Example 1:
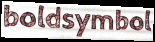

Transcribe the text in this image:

boldsymbol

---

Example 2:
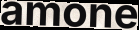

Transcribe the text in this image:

amone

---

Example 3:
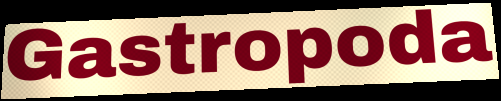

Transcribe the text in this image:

Gastropoda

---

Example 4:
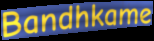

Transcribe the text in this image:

Bandhkame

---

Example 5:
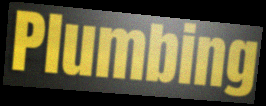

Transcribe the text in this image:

Plumbing